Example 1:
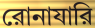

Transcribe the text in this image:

রোনাযারি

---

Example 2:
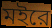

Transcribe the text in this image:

মইরে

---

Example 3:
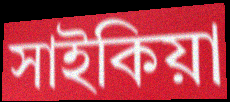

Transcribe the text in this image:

সাইকিয়া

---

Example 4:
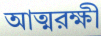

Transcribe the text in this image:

আত্মরক্ষী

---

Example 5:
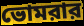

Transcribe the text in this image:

ভোমরার